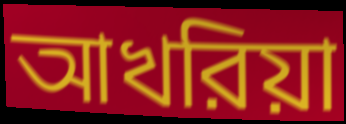
আখরিয়া